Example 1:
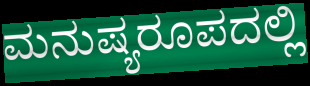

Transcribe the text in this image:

ಮನುಷ್ಯರೂಪದಲ್ಲಿ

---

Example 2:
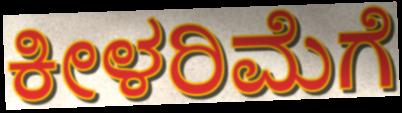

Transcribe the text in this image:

ಕೀಳರಿಮೆಗೆ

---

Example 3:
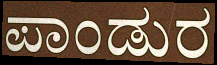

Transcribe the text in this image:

ಪಾಂಡುರ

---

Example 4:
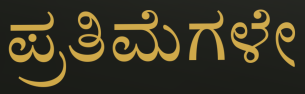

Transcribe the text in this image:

ಪ್ರತಿಮೆಗಳೇ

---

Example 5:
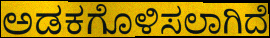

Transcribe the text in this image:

ಅಡಕಗೊಳಿಸಲಾಗಿದೆ